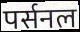
पर्सनल